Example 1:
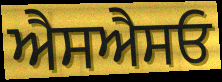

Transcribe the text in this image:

ਐਸਐਸਓ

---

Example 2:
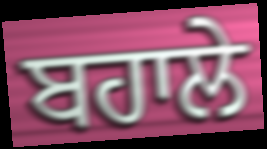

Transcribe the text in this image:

ਬਹਾਲੇ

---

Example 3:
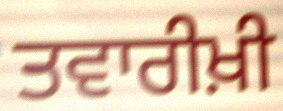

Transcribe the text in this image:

ਤਵਾਰੀਖ਼ੀ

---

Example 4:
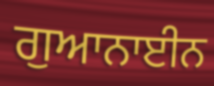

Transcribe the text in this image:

ਗੁਆਨਾਈਨ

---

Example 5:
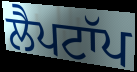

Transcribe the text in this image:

ਲੈਪਟਾੱਪ